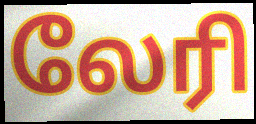
லேரி